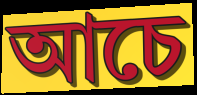
আচে